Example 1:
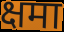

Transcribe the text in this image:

क्षमा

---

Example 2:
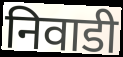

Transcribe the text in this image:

निवाडी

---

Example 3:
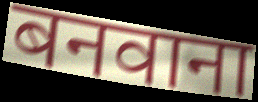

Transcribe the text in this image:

बनवाना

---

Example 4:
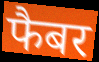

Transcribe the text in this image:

फैबर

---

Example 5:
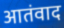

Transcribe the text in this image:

आतंवाद